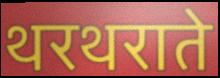
थरथराते